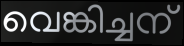
വെങ്കിച്ചന്